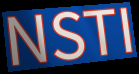
NSTI